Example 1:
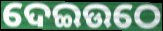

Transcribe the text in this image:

ଦେଇଉଠେ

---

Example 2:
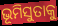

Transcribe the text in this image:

ଭୂମିସୁତାକୁ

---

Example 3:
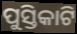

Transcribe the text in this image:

ପୁସ୍ତିକାଟି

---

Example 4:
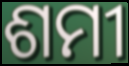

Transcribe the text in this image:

ଶମୀ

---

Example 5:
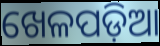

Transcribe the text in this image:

ଖେଳପଡ଼ିଆ